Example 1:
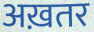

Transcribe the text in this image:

अख़तर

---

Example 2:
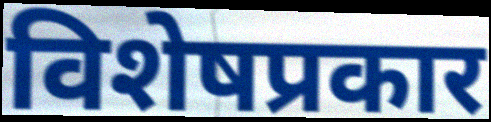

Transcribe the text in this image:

विशेषप्रकार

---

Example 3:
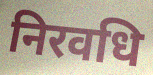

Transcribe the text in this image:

निरवधि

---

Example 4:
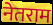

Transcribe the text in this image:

नेतराम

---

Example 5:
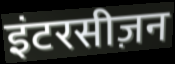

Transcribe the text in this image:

इंटरसीज़न